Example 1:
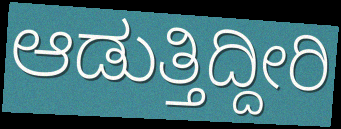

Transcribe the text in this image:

ಆಡುತ್ತಿದ್ದೀರಿ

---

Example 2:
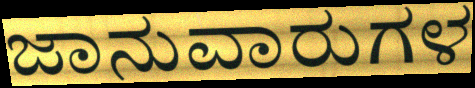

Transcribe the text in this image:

ಜಾನುವಾರುಗಳ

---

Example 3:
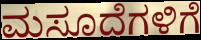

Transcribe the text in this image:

ಮಸೂದೆಗಳಿಗೆ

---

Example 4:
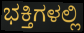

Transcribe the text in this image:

ಭಕ್ತಿಗಳಲ್ಲಿ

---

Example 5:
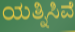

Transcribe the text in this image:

ಯತ್ನಿಸಿವೆ